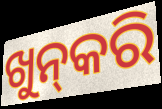
ଖୁନ୍‍କରି